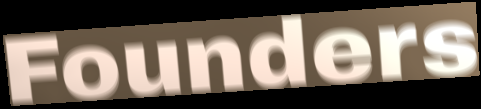
Founders